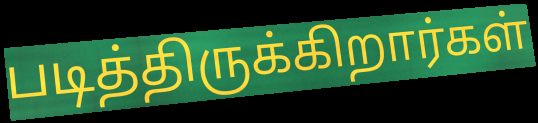
படித்திருக்கிறார்கள்